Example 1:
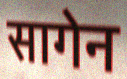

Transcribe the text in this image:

सागेन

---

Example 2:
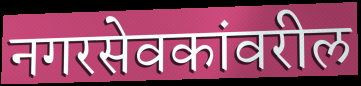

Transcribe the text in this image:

नगरसेवकांवरील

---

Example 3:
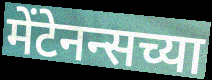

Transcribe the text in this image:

मेंटेनन्सच्या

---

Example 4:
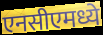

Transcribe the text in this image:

एनसीएमध्ये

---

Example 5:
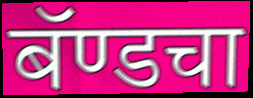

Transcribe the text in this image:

बॅण्डचा